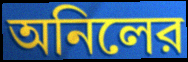
অনিলের